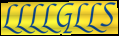
LLLLGLLS